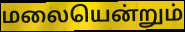
மலையென்றும்